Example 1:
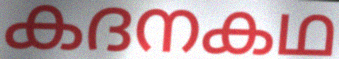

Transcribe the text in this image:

കദനകഥ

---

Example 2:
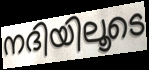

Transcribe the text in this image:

നദിയിലൂടെ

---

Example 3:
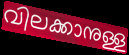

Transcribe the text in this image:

വിലക്കാനുള്ള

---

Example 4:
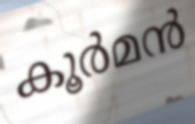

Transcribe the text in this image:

കൂർമൻ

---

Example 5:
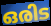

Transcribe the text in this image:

ഒരിട